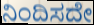
ನಿಂದಿಸದೇ